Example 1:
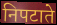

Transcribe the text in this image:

निपटाते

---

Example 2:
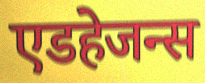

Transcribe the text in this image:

एडहेजन्स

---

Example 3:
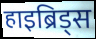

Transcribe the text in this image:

हाइब्रिड्स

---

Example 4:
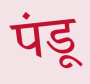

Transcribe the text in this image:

पंडू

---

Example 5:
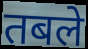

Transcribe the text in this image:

तबले